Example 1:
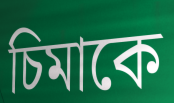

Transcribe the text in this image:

চিমাকে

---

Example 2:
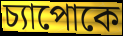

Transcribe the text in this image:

চ্যাপোকে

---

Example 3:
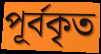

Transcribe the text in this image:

পূর্বকৃত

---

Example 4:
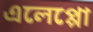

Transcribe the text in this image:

এলেপ্পো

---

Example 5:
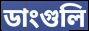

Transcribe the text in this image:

ডাংগুলি